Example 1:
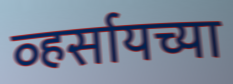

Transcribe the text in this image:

व्हर्सायच्या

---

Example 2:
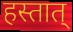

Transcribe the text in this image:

हस्तात्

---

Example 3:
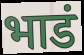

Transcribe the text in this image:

भाडं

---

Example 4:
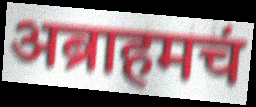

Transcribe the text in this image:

अब्राहमचं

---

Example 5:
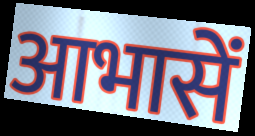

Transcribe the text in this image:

आभासें